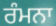
ਰੰਮਨਾ